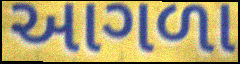
આગળા